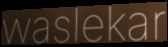
waslekar